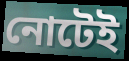
নোটেই